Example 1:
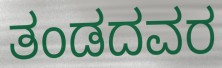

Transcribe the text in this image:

ತಂಡದವರ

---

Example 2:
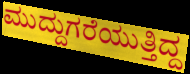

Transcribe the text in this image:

ಮುದ್ದುಗರೆಯುತ್ತಿದ್ದ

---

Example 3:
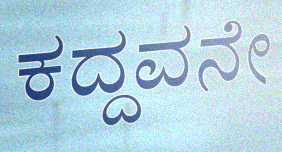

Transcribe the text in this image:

ಕದ್ದವನೇ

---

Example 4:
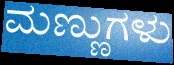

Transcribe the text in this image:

ಮಣ್ಣುಗಳು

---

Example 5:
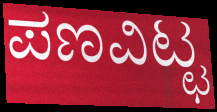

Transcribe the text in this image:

ಪಣವಿಟ್ಟ